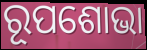
ରୂପଶୋଭା